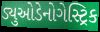
ડ્યુઓડેનોગેસ્ટ્રિક